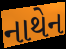
નાથેન